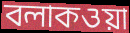
বলাকওয়া